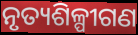
ନୃତ୍ୟଶିଳ୍ପୀଗଣ